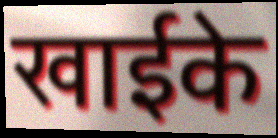
खाईके